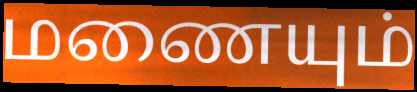
மணையும்